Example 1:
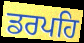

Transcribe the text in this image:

ਡਰਪਹਿ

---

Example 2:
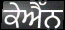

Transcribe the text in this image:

ਕੇਐੱਨ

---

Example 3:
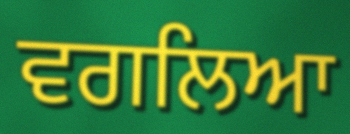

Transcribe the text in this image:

ਵਗਲਿਆ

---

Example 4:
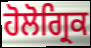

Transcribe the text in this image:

ਹੋਲੋਗ੍ਰਿਕ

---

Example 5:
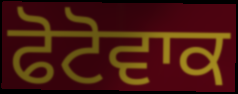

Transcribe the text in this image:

ਫੋਟੋਵਾਕ